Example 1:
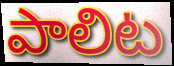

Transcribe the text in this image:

పాలిట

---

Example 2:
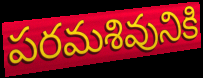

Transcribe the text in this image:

పరమశివునికి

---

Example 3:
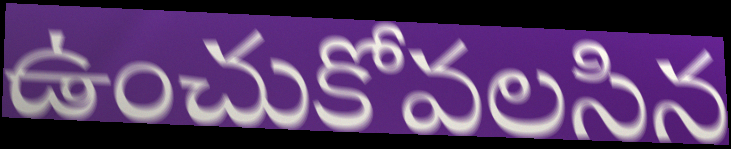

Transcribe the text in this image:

ఉంచుకోవలసిన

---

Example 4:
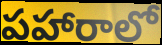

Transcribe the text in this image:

పహారాలో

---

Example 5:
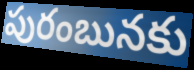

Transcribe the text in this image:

పురంబునకు